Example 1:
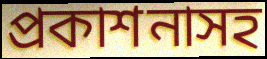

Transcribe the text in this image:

প্রকাশনাসহ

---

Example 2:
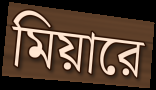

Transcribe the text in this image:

মিয়ারে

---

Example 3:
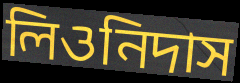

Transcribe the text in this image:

লিওনিদাস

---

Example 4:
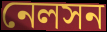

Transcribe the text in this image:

নেলসন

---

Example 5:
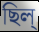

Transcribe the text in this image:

ছিল্